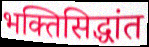
भक्तिसिद्धांत